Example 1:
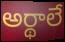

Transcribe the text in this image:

అర్థాలే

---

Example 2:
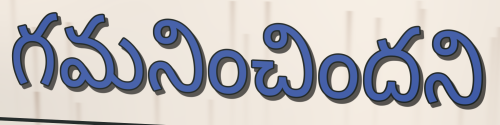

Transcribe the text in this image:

గమనించిందని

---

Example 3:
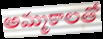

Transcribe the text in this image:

అమ్మకాలతో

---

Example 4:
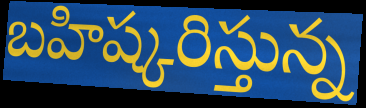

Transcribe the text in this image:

బహిష్కరిస్తున్న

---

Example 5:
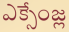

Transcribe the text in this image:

ఎక్సేంజ్ల